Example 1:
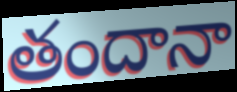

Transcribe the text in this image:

తందానా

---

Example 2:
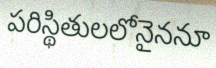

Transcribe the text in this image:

పరిస్థితులలోనైననూ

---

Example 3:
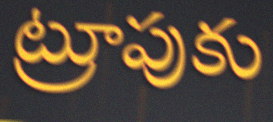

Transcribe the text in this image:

ట్రూపుకు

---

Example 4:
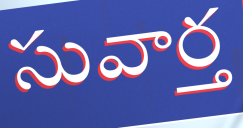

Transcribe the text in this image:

సువార్త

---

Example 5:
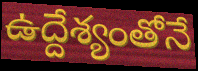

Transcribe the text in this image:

ఉద్దేశ్యంతోనే